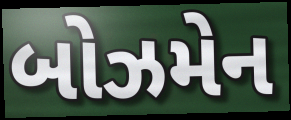
બોઝમેન